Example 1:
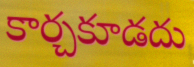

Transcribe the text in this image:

కార్చకూడదు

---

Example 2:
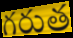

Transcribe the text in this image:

గరుత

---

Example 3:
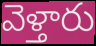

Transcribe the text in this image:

వెళ్తారు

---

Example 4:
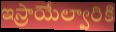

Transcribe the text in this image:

ఇస్రాయేల్వారికి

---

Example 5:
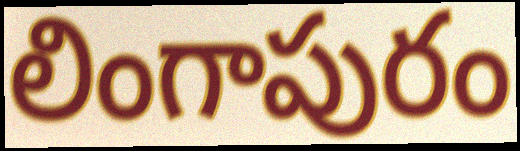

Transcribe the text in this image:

లింగాపురం